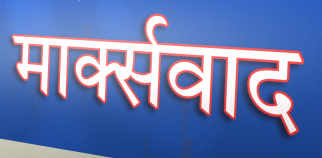
मार्क्सवाद